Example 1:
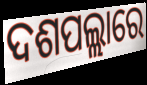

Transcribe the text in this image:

ଦଶପଲ୍ଲାରେ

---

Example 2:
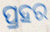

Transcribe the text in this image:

ପ୍ରହର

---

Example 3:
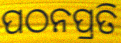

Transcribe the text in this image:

ପଠନପ୍ରତି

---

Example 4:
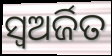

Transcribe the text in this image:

ସ୍ୱଅର୍ଜିତ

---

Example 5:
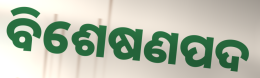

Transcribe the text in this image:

ବିଶେଷଣପଦ